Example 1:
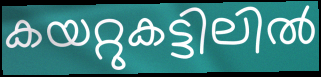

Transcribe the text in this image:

കയറ്റുകട്ടിലിൽ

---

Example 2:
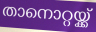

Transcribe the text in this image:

താനൊറ്റയ്ക്ക്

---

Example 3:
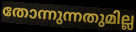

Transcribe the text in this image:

തോന്നുന്നതുമില്ല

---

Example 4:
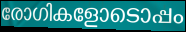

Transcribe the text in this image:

രോഗികളോടൊപ്പം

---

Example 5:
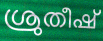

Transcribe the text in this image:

ശ്രുതീഷ്